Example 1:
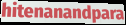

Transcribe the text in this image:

hitenanandpara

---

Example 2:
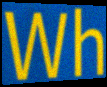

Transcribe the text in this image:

Wh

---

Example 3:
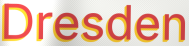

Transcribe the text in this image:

Dresden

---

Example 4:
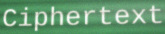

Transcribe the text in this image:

Ciphertext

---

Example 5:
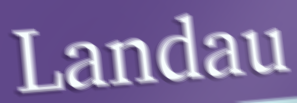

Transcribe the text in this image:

Landau